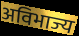
अविभाज्य